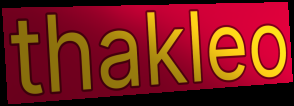
thakleo